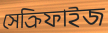
সেক্রিফাইজ